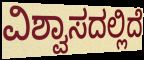
ವಿಶ್ವಾಸದಲ್ಲಿದೆ